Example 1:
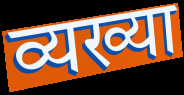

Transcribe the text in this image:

व्यख्या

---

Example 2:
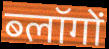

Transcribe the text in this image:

ब्‍लॉगों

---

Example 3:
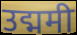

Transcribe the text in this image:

उद्ममी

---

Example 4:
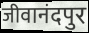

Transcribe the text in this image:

जीवानंदपुर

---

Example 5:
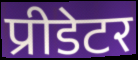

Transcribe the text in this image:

प्रीडेटर